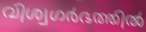
വിശ്വഗർഭത്തിൽ